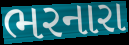
ભરનારા